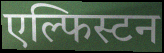
एल्फिस्टन